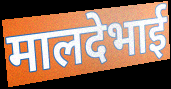
मालदेभाई